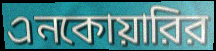
এনকোয়ারির